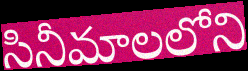
సినీమాలలోని